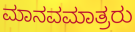
ಮಾನವಮಾತ್ರರು